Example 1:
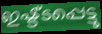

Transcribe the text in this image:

ഇഷ്ട്ടപ്പെട്ടു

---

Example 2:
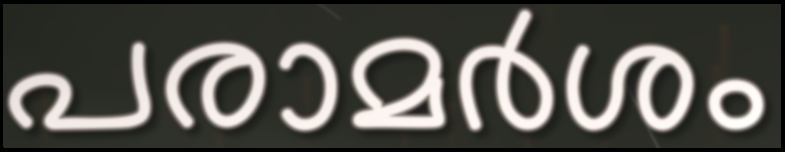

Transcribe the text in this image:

പരാമർശം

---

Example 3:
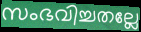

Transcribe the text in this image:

സംഭവിച്ചതല്ലേ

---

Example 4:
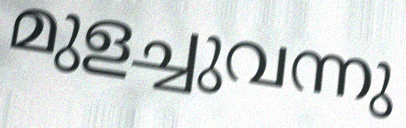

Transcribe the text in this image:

മുളച്ചുവന്നു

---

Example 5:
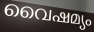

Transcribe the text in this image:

വൈഷമ്യം